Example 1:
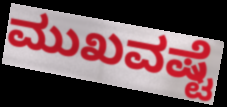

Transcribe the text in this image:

ಮುಖವಷ್ಟೆ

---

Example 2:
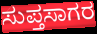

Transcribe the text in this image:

ಸುಪ್ತಸಾಗರ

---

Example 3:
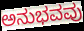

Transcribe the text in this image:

ಅನುಭವವು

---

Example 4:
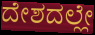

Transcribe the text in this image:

ದೇಶದಲ್ಲೇ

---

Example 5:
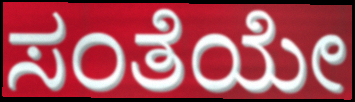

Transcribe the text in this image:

ಸಂತೆಯೇ